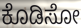
ಕೊಡಿಸೋ